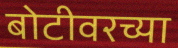
बोटीवरच्या